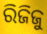
ରିଜିଜୁ